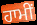
ਹਾਮੀਂ